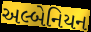
અલ્બેનિયન